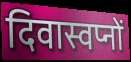
दिवास्वप्नों